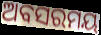
ଅବସରମୟ